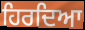
ਹਿਰਦਿਆ